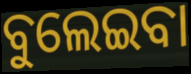
ବୁଲେଇବା